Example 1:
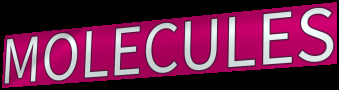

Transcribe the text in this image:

MOLECULES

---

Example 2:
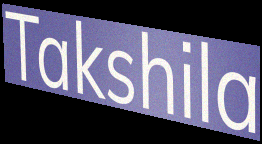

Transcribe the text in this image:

Takshila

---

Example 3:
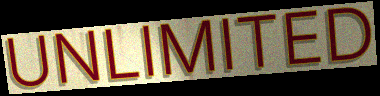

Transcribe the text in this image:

UNLIMITED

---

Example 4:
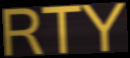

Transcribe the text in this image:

RTY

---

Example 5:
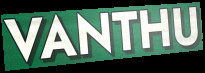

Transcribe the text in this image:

VANTHU